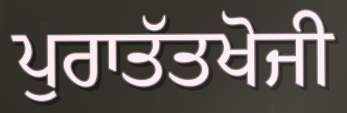
ਪੁਰਾਤੱਤਖੋਜੀ